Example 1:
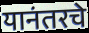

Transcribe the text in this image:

यानंतरचे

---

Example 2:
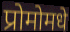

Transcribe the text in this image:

प्रोमोमधे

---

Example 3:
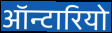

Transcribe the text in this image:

ऑन्टारियो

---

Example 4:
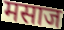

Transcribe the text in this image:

मसाज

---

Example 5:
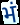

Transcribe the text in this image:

भं